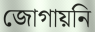
জোগায়নি